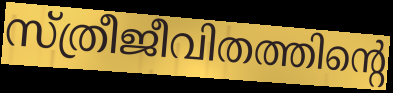
സ്ത്രീജീവിതത്തിന്റെ